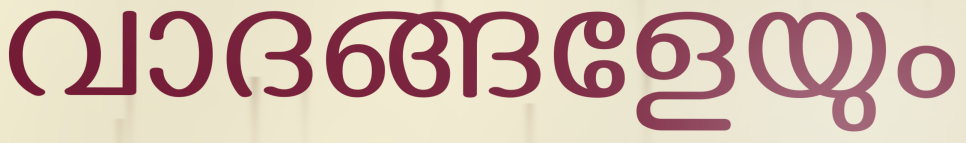
വാദങ്ങളേയും